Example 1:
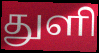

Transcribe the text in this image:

துளி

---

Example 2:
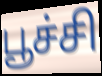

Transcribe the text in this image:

பூச்சி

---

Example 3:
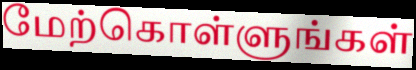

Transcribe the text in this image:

மேற்கொள்ளுங்கள்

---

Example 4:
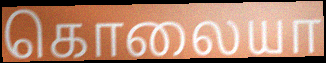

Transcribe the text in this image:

கொலையா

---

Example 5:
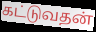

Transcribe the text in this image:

கட்டுவதன்